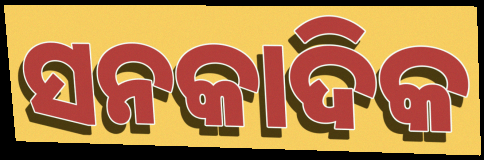
ସନକାଦିକ